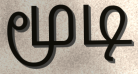
மூடி